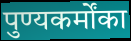
पुण्यकर्मोंका